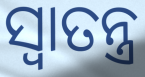
ସ୍ୱାତନ୍ତ୍ର